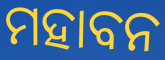
ମହାବନ